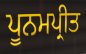
ਪੂਨਮਪ੍ਰੀਤ